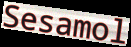
Sesamol